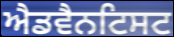
ਐਡਵੈਨਟਿਸਟ